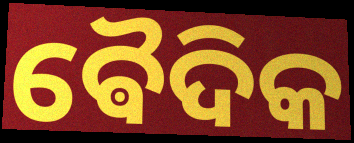
ଵୈଦିକ